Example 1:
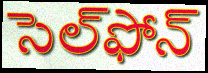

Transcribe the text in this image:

సెల్‌ఫోన్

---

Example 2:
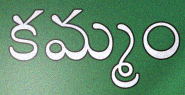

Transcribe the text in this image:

కమ్మం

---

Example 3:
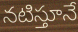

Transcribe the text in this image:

నటిస్తూనే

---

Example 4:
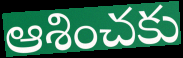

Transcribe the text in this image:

ఆశించకు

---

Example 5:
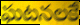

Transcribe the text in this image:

ఘటనలకే